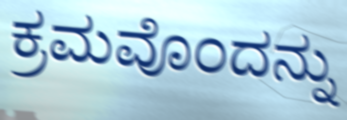
ಕ್ರಮವೊಂದನ್ನು